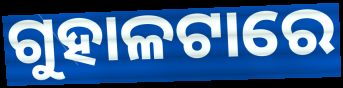
ଗୁହାଳଟାରେ